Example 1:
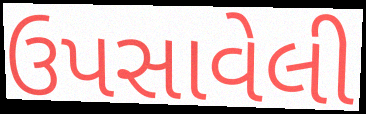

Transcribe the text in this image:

ઉપસાવેલી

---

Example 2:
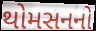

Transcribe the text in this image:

થોમસનનો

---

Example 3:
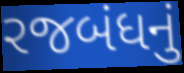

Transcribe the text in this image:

રજબંધનું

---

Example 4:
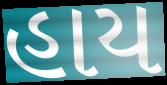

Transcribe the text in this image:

હાય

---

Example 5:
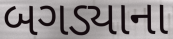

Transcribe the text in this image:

બગડ્યાના